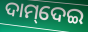
ଦାମ୍‌ଦେଇ